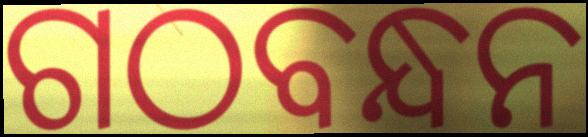
ଗଠବନ୍ଧନ